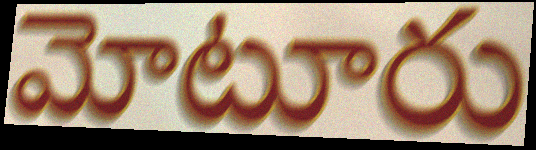
మోటూరు